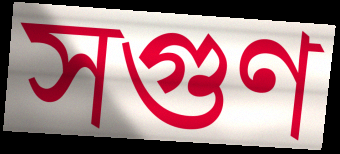
সগুণ